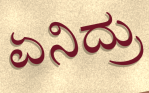
ಏನಿದ್ರು